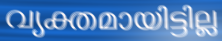
വ്യക്തമായിട്ടില്ല